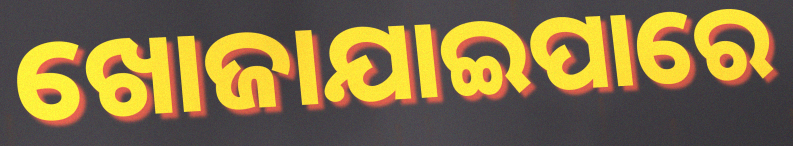
ଖୋଜାଯାଇପାରେ